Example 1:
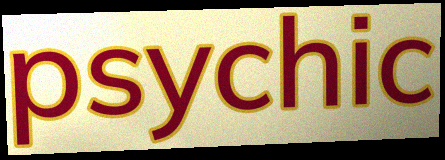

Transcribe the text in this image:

psychic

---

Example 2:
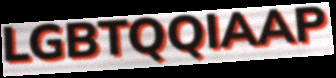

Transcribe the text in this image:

LGBTQQIAAP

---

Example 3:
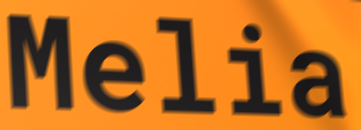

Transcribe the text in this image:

Melia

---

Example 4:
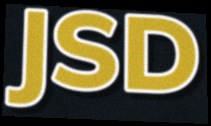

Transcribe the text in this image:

JSD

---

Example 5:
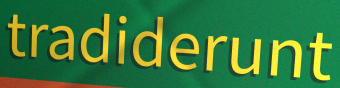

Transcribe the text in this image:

tradiderunt